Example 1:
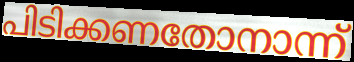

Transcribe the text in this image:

പിടിക്കണതോനാന്ന്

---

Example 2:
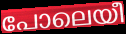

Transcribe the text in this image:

പോലെയീ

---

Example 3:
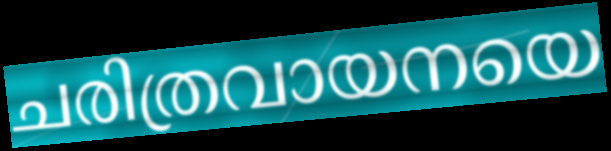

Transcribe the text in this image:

ചരിത്രവായനയെ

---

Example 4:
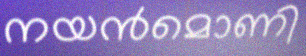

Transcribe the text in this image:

നയൻമൊണി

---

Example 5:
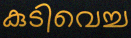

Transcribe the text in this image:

കുടിവെച്ച